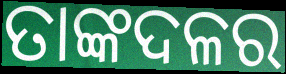
ତାଙ୍କଦଳର